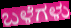
ಬಳೆಗಳು